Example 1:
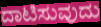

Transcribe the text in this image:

ದಾಟಿಸುವುದು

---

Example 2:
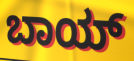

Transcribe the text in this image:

ಬಾಯ್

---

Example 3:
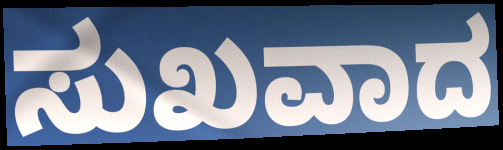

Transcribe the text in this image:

ಸುಖವಾದ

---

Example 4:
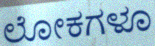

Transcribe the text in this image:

ಲೋಕಗಳೂ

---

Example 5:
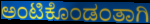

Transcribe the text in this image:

ಅಂಟಿಕೊಂಡಂತಾಗಿ